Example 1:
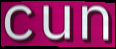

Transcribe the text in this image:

cun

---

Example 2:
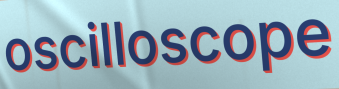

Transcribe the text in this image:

oscilloscope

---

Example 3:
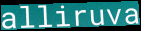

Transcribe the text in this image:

alliruva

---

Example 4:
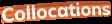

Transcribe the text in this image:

Collocations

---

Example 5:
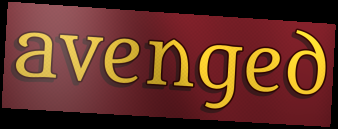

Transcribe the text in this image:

avenged